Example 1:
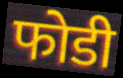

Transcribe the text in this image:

फोडी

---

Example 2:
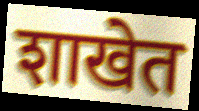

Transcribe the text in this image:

शाखेत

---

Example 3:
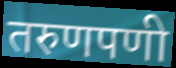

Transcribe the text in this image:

तरुणपणी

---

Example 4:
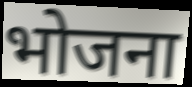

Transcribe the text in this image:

भोजना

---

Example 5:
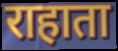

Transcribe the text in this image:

राहाता